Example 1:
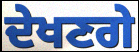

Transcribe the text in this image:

ਦੇਖਣਗੇ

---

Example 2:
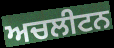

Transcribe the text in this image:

ਅਚਲੀਟਨ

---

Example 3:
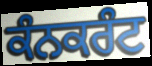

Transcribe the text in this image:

ਕੰਨਕਰੰਟ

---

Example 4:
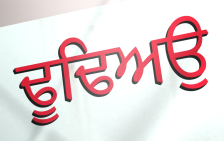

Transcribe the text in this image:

ਢੂਢਿਅਉ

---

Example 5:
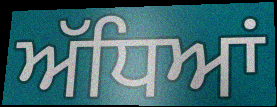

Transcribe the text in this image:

ਅੱਧਿਆਂ